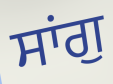
ਸਾਂਗੁ